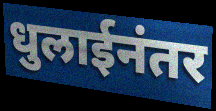
धुलाईनंतर